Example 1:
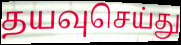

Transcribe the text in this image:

தயவுசெய்து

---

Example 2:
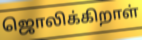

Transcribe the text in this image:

ஜொலிக்கிறாள்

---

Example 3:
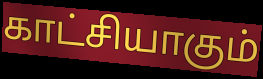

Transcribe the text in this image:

காட்சியாகும்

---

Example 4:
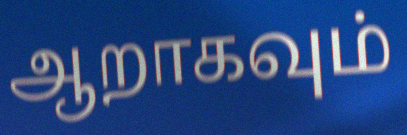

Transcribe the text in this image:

ஆறாகவும்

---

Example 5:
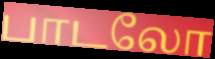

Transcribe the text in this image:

பாடலோ